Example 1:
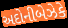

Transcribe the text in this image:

અદોનીબેઝેકે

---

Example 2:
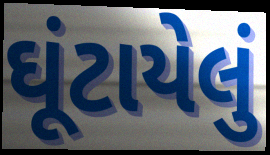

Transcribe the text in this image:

ઘૂંટાયેલું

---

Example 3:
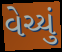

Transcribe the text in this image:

વેચ્યું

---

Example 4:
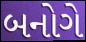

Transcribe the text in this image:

બનોગે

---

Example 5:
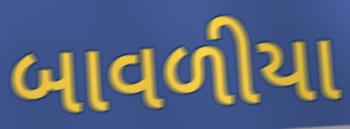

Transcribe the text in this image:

બાવળીયા